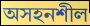
অসহনশীল